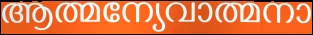
ആത്മന്യേവാത്മനാ